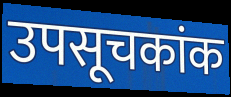
उपसूचकांक